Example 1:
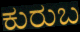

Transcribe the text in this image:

ಕುರುಬ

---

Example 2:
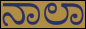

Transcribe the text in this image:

ನಾಲಾ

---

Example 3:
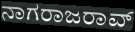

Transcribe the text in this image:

ನಾಗರಾಜರಾವ್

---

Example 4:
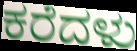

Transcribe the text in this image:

ಕರೆದಳು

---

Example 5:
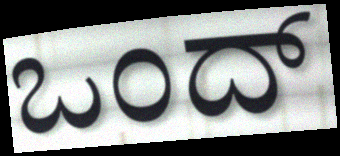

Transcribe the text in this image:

ಒಂದ್